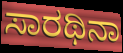
ಸಾರಥಿನಾ